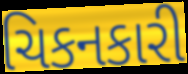
ચિકનકારી